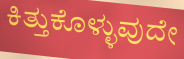
ಕಿತ್ತುಕೊಳ್ಳುವುದೇ